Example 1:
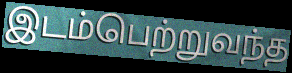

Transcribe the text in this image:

இடம்பெற்றுவந்த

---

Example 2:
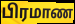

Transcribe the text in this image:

பிரமாண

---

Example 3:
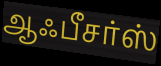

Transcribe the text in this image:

ஆஃபீசர்ஸ்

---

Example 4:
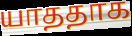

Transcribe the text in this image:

யாததாக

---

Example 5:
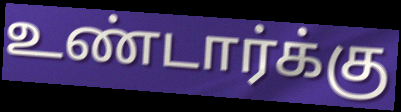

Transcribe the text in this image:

உண்டார்க்கு